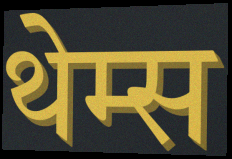
थेम्स